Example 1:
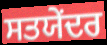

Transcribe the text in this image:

ਸਤਯੇਂਦਰ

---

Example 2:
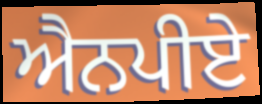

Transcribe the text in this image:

ਐਨਪੀਏ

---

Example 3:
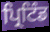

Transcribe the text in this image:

ਪ੍ਰਿਟਿੰਡ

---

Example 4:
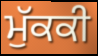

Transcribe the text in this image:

ਮੁੱਕਕੀ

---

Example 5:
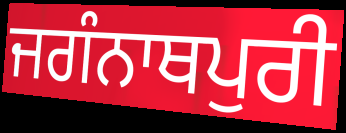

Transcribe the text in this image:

ਜਗੰਨਾਥਪੁਰੀ